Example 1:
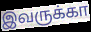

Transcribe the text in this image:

இவருக்கா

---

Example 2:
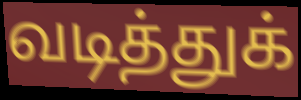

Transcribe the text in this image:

வடித்துக்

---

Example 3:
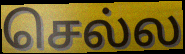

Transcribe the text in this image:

செல்ல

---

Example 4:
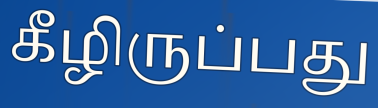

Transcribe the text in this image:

கீழிருப்பது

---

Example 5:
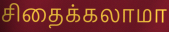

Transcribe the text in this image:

சிதைக்கலாமா